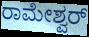
ರಾಮೇಶ್ವರ್